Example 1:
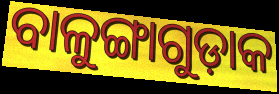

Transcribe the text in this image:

ବାଳୁଙ୍ଗାଗୁଡ଼ାକ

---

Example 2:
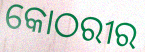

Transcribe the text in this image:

କୋଠରୀର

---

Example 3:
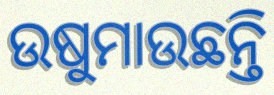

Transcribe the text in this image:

ଉଷୁମାଉଛନ୍ତି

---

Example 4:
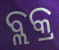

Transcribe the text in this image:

ବ୍ଲକ୍ର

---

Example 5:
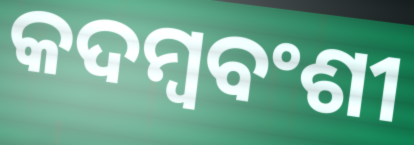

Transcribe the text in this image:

କଦମ୍ବବଂଶୀ